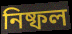
নিষ্ফল